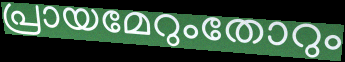
പ്രായമേറുംതോറും